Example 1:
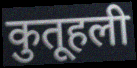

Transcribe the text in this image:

कुतूहली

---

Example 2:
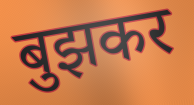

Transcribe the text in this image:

बुझकर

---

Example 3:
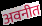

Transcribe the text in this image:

अवनीत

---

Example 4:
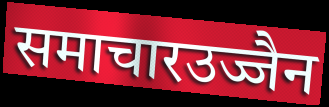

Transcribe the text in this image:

समाचारउज्जैन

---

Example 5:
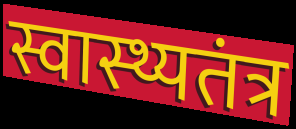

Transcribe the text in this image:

स्वास्थ्यतंत्र